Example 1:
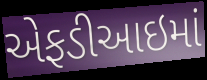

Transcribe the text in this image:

એફડીઆઇમાં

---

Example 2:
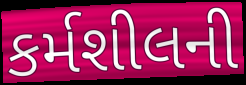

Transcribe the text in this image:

કર્મશીલની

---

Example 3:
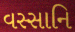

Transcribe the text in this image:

વસ્સાનિ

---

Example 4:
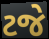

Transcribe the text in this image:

ટજે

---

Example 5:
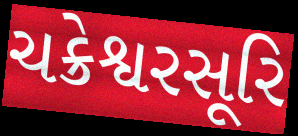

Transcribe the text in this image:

ચક્રેશ્વરસૂરિ